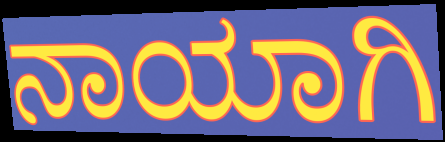
ನಾಯಾಗಿ